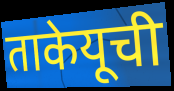
ताकेयूची